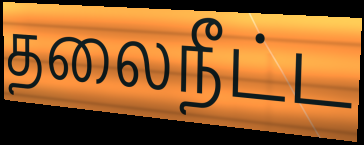
தலைநீட்ட